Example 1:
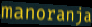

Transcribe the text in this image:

manoranja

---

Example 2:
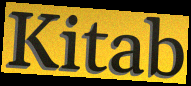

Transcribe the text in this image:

Kitab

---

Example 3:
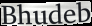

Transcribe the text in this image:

Bhudeb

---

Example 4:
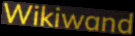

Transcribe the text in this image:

Wikiwand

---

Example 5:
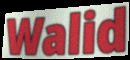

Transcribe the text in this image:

Walid